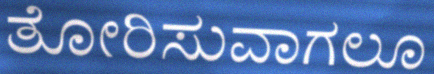
ತೋರಿಸುವಾಗಲೂ